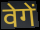
वेगें